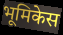
भूमिकेस